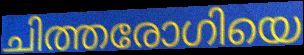
ചിത്തരോഗിയെ